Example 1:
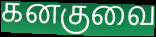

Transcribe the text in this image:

கனகுவை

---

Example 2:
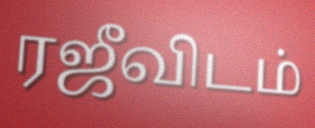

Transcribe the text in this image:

ரஜீவிடம்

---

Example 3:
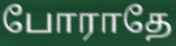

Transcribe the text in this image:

போராதே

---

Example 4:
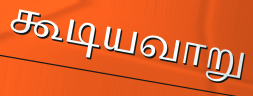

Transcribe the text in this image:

கூடியவாறு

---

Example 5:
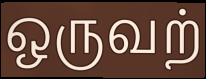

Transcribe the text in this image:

ஒருவற்